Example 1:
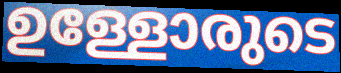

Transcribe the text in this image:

ഉള്ളോരുടെ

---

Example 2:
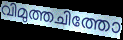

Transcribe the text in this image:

വിമുത്തചിത്തോ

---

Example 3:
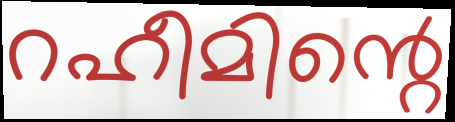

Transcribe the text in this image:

റഹീമിന്റെ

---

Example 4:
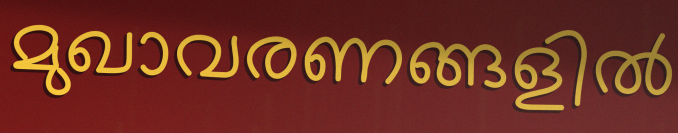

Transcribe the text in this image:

മുഖാവരണങ്ങളിൽ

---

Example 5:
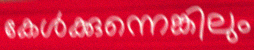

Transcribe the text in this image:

കേൾക്കുന്നെങ്കിലും